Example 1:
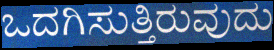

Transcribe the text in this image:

ಒದಗಿಸುತ್ತಿರುವುದು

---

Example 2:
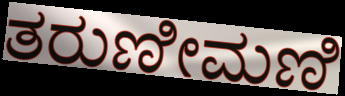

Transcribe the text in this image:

ತರುಣೀಮಣಿ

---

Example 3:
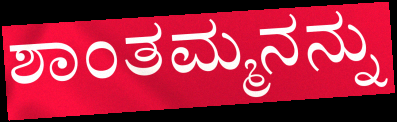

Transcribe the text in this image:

ಶಾಂತಮ್ಮನನ್ನು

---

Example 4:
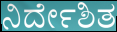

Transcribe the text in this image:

ನಿರ್ದೇಶಿತ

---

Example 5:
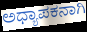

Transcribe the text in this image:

ಅಧ್ಯಾಪಕನಾಗಿ